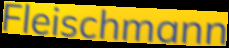
Fleischmann